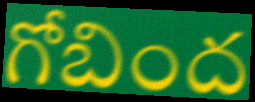
గోబింద